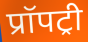
प्रॉपट्री